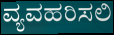
ವ್ಯವಹರಿಸಲಿ